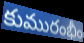
కుమురంభీం